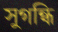
সুগন্ধি